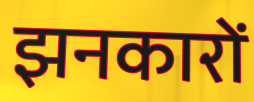
झनकारों